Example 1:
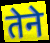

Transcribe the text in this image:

तेने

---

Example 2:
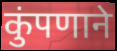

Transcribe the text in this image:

कुंपणाने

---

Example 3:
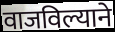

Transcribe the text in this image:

वाजविल्याने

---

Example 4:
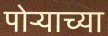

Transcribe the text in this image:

पोऱ्याच्या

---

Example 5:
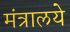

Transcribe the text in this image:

मंत्रालये